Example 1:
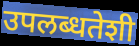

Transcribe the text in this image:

उपलब्धतेशी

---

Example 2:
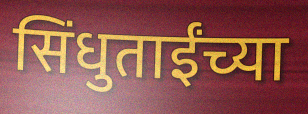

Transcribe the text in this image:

सिंधुताईंच्या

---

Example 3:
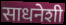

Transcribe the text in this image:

साधनेशी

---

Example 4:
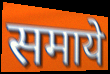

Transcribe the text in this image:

समाये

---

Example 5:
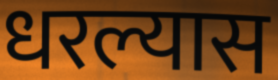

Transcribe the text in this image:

धरल्यास